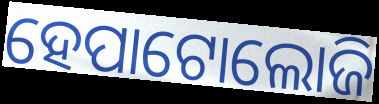
ହେପାଟୋଲୋଜି